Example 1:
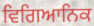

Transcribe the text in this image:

ਵਿਗਿਆਨਿਕ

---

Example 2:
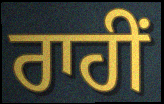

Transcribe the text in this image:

ਰਾਹੀਂ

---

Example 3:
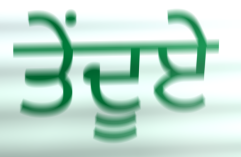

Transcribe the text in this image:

ਤੇਂਦੂਏ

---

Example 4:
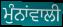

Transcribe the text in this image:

ਮੁੰਨਾਂਵਾਲੀ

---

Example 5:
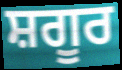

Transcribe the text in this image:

ਸ਼ਗੂਰ